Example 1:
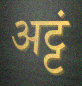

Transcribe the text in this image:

अट्टं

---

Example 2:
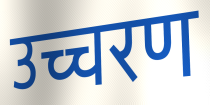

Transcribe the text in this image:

उच्चरण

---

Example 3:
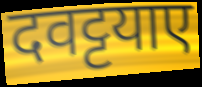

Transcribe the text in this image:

दवट्टयाए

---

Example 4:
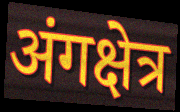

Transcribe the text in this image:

अंगक्षेत्र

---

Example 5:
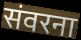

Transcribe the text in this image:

संवरना